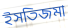
ইসতিজমা